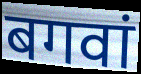
बगवां